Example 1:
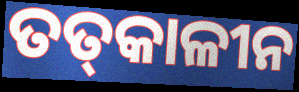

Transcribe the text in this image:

ତତ୍‌କାଳୀନ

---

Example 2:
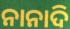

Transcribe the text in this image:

ନାନାଦି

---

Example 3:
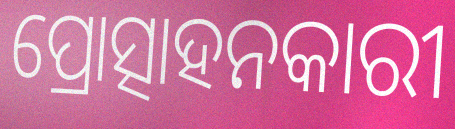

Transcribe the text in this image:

ପ୍ରୋତ୍ସାହନକାରୀ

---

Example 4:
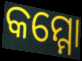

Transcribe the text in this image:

କମ୍ମୋ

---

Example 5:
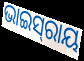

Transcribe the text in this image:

ଭାଇସ୍‍ରାୟ